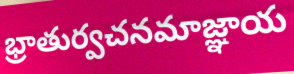
భ్రాతుర్వచనమాజ్ఞాయ